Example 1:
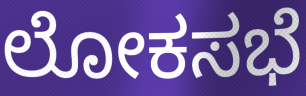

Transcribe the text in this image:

ಲೋಕಸಭೆ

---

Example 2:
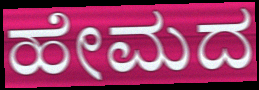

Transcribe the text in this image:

ಹೇಮದ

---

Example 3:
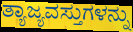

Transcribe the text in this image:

ತ್ಯಾಜ್ಯವಸ್ತುಗಳನ್ನು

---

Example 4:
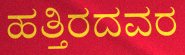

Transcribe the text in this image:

ಹತ್ತಿರದವರ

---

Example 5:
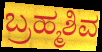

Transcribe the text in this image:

ಬ್ರಹ್ಮಶಿವ